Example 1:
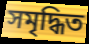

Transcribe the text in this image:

সমৃদ্ধিত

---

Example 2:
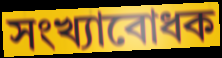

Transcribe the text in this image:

সংখ্যাবোধক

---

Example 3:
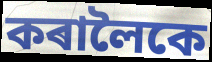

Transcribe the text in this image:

কৰালৈকে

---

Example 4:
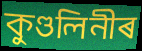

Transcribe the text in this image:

কুণ্ডলিনীৰ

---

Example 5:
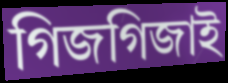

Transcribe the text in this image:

গিজগিজাই